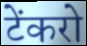
टेंकरो